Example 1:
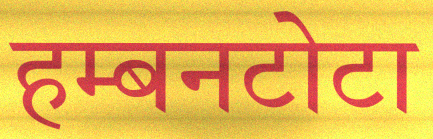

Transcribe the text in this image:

हम्बनटोटा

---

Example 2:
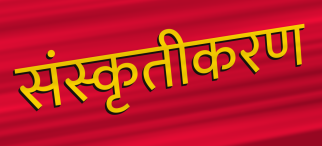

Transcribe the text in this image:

संस्कृतीकरण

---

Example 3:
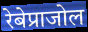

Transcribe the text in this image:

रेबेप्राजोल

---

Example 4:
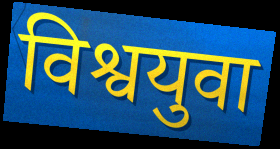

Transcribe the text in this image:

विश्वयुवा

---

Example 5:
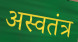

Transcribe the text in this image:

अस्वतंत्र